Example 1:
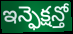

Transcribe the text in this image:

ఇన్ఫెక్షన్తో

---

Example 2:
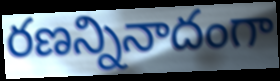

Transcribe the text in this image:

రణన్నినాదంగా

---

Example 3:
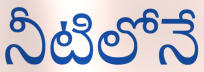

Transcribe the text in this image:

నీటిలోనే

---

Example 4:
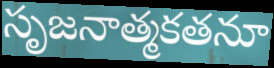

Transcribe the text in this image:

సృజనాత్మకతనూ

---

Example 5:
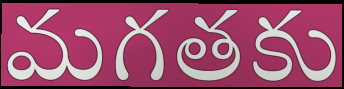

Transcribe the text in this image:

మగతకు